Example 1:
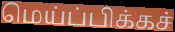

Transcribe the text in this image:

மெய்ப்பிக்கச்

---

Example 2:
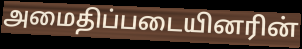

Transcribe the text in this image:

அமைதிப்படையினரின்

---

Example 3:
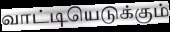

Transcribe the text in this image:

வாட்டியெடுக்கும்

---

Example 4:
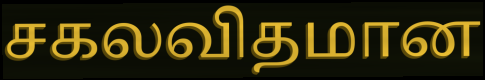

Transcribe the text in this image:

சகலவிதமான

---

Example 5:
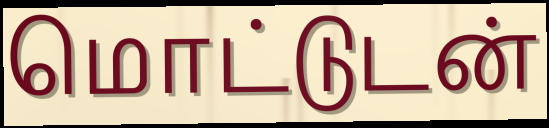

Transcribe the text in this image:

மொட்டுடன்